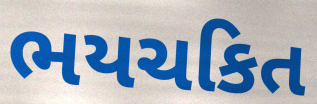
ભયચકિત